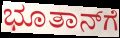
ಭೂತಾನ್‌ಗೆ